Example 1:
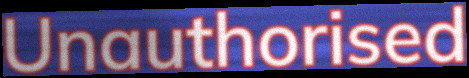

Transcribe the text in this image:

Unauthorised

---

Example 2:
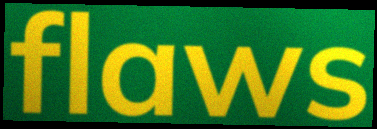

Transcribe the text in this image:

flaws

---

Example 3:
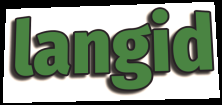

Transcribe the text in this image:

langid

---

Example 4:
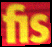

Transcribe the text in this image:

fis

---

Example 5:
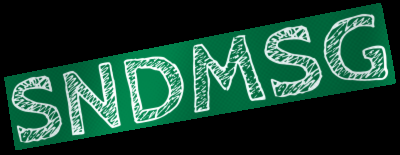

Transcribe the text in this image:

SNDMSG